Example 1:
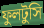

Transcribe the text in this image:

ফুলটুসি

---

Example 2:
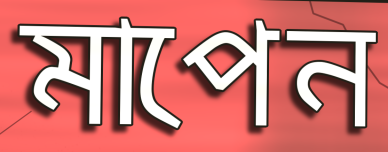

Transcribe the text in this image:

মাপেন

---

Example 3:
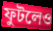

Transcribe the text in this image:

ফুটলেও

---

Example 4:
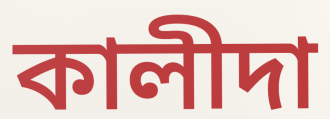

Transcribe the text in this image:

কালীদা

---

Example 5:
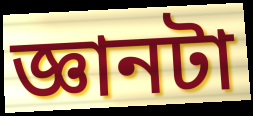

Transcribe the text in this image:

জ্ঞানটা